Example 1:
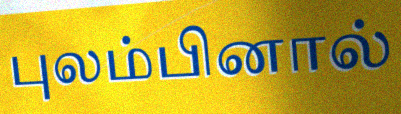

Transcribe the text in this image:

புலம்பினால்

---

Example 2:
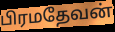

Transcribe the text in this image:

பிரமதேவன்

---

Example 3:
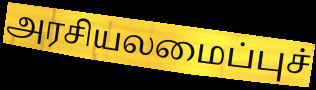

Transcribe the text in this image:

அரசியலமைப்புச்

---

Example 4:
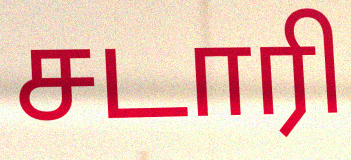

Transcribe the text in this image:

சடாரி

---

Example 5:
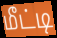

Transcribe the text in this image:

மீட்டி